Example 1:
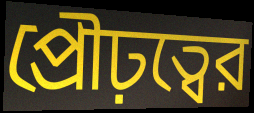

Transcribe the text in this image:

প্রৌঢ়ত্বের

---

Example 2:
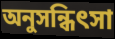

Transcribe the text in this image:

অনুসন্ধিৎসা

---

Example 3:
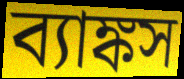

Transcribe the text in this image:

ব্যাঙ্কস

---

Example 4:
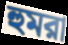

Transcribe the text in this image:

হুমরা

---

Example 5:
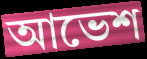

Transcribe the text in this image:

আভেশ